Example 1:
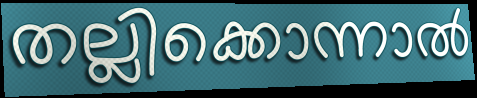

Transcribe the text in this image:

തല്ലിക്കൊന്നാൽ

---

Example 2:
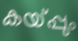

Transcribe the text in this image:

കയ്പ്പും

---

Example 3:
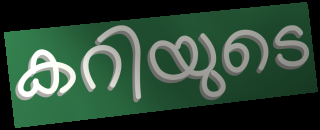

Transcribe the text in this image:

കറിയുടെ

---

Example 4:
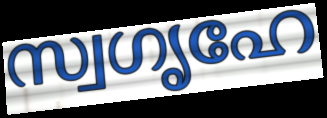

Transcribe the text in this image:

സ്വഗൃഹേ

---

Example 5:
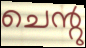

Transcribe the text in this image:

ചെന്റു